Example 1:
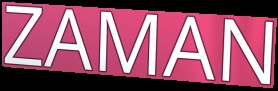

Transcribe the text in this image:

ZAMAN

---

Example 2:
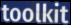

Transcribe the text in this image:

toolkit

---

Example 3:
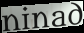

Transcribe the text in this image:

ninad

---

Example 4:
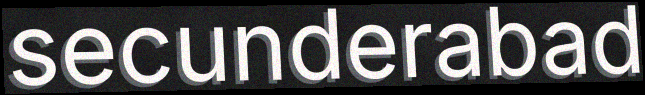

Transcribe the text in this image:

secunderabad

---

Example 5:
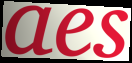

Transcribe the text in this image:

aes